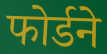
फोर्डने